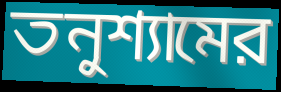
তনুশ্যামের